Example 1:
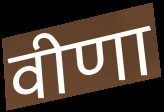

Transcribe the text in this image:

वीणा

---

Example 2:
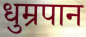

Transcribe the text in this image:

धुम्रपान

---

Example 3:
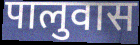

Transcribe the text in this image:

पालुवास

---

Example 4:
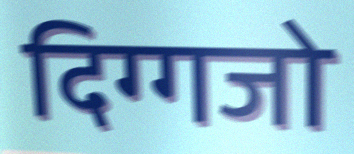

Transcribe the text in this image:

दिग्गजो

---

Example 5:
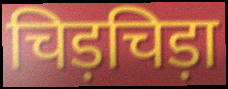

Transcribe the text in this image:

चिड़चिड़ा